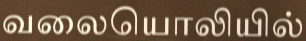
வலையொலியில்